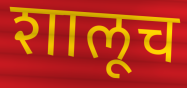
शालूच